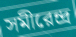
সমীরেন্দ্র